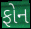
ફોન